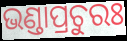
ଭଣ୍ଡାପ୍ରଚୁରଃ